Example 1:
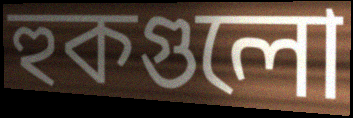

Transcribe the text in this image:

হুকগুলো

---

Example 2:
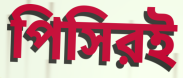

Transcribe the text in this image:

পিসিরই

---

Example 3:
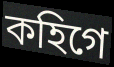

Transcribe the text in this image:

কহিগে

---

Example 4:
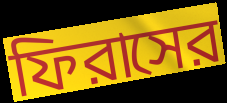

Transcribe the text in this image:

ফিরাসের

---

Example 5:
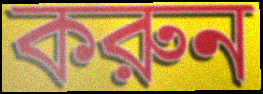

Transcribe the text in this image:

করুন